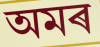
অমৰ